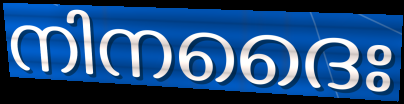
നിനദൈഃ